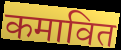
कमावित